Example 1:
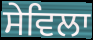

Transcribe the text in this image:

ਸੇਵਿਲਾ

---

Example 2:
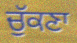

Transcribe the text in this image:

ਚੁੱਕਣਾ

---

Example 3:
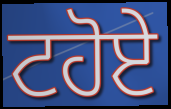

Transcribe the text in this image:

ਟਹੋਏ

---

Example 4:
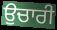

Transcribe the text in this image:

ਉਚਾਰੀ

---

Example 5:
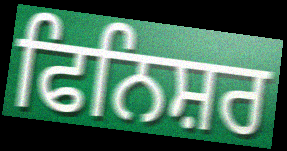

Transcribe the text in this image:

ਫਿਨਿਸ਼ਰ